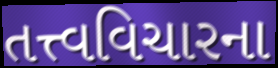
તત્ત્વવિચારના